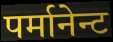
पर्मानेन्ट